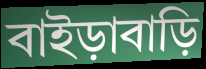
বাইড়াবাড়ি